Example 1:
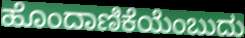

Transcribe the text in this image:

ಹೊಂದಾಣಿಕೆಯೆಂಬುದು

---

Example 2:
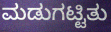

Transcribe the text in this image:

ಮಡುಗಟ್ಟಿತು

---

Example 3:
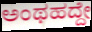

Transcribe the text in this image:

ಅಂಥಹದ್ದೇ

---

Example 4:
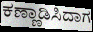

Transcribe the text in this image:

ಕಣ್ಣಾಡಿಸಿದಾಗ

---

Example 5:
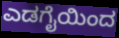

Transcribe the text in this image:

ಎಡಗೈಯಿಂದ